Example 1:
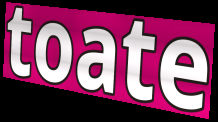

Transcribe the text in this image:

toate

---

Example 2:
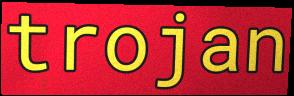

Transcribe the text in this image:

trojan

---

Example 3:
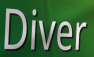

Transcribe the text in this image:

Diver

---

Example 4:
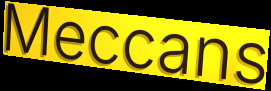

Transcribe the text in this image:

Meccans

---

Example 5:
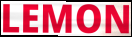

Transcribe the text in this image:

LEMON